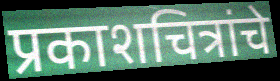
प्रकाशचित्रांचे